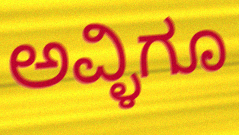
ಅವ್ಳಿಗೂ